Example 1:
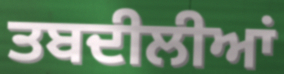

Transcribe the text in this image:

ਤਬਦੀਲੀਆਂ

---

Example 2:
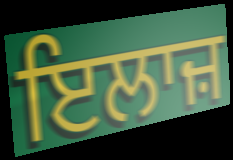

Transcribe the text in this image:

ਇਲਾਜ਼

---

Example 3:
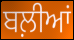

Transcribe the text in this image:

ਬਲ਼ੀਆਂ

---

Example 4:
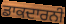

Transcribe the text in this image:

ਡਾਕਦਾਰਨੀ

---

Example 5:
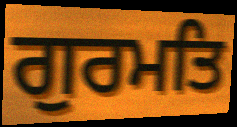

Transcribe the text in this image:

ਗੁਰਮਤਿ